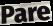
Pare